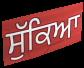
ਸੁੱਕਿਆ